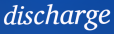
discharge